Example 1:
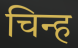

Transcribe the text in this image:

चिन्ह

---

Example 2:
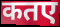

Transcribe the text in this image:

कतए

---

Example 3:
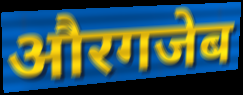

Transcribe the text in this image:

औरगजेब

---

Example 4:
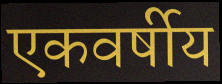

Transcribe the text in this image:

एकवर्षीय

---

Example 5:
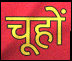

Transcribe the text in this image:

चूहों